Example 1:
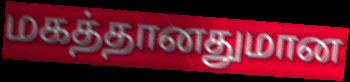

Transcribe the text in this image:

மகத்தானதுமான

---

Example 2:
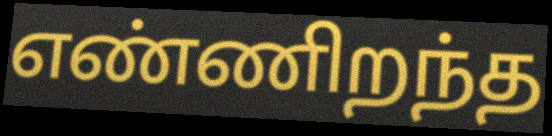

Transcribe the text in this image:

எண்ணிறந்த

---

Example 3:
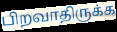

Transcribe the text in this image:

பிறவாதிருக்க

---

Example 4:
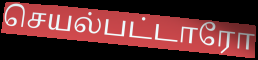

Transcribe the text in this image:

செயல்பட்டாரோ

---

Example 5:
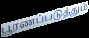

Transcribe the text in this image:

பூரணப்படுத்தும்